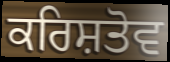
ਕਰਿਸ਼ਤੋਵ